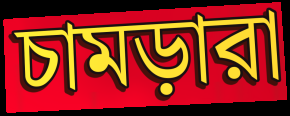
চামড়ারা